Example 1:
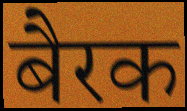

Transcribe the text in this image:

बैरक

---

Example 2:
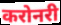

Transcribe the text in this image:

करोनरी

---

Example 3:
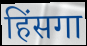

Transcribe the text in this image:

हिंसगा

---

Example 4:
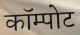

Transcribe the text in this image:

कॉम्पोट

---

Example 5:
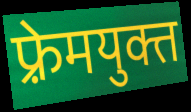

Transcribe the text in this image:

फ़्रेमयुक्त